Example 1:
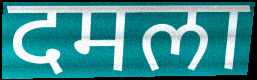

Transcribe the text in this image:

दमला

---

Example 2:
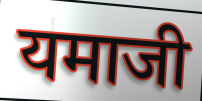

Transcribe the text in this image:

यमाजी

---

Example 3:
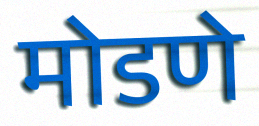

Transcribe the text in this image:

मोडणे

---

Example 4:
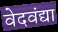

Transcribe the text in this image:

वेदवंद्या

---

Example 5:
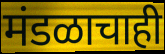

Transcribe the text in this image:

मंडळाचाही